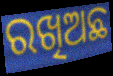
ରଖିଅଛ